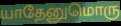
யாதேனுமொரு